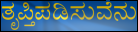
ತೃಪ್ತಿಪಡಿಸುವೆನು